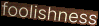
foolishness